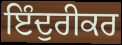
ਇੰਦੁਰੀਕਰ